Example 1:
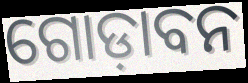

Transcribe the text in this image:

ଗୋଡ଼ାବନ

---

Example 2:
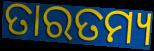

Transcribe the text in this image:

ତାରତମ୍ୟ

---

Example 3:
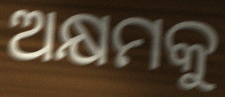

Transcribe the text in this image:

ଅକ୍ଷମକୁ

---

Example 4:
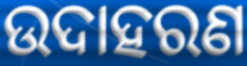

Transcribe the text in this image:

ଉଦାହରଣ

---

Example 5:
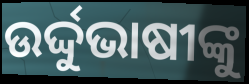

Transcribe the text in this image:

ଉର୍ଦ୍ଦୁଭାଷୀଙ୍କୁ